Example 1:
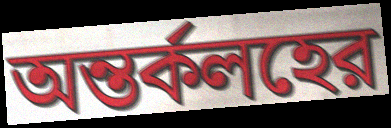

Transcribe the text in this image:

অন্তর্কলহের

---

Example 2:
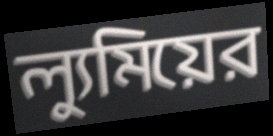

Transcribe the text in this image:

ল্যুমিয়ের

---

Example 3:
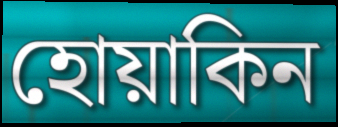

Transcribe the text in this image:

হোয়াকিন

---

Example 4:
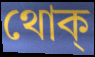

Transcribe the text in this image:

থোক্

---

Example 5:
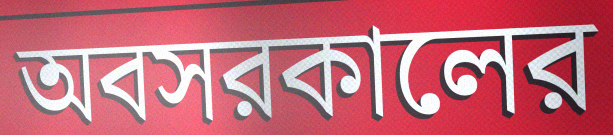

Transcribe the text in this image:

অবসরকালের